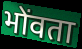
भोंवता